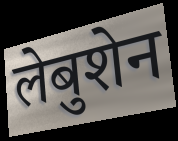
लेबुशेन